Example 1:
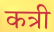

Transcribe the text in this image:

कत्री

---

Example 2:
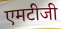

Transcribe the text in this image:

एमटीजी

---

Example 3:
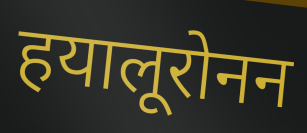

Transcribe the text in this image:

हयालूरोनन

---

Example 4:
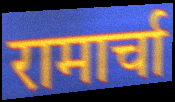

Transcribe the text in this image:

रामार्चा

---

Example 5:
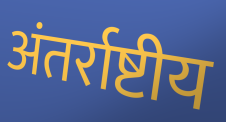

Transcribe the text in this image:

अंतर्राष्टीय